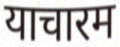
याचारम